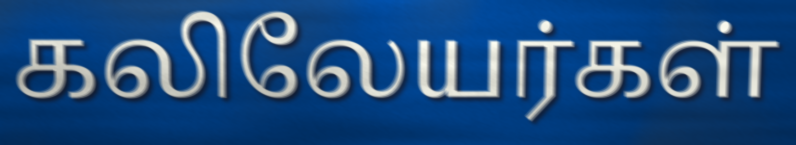
கலிலேயர்கள்